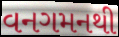
વનગમનથી